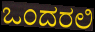
ಒಂದರಲಿ